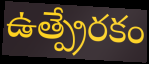
ఉత్ప్రేరకం